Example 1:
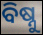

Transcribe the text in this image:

ବିଷ୍ନୁ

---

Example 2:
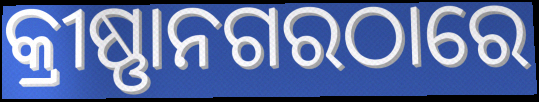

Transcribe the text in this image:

କ୍ରୀଷ୍ଣାନଗରଠାରେ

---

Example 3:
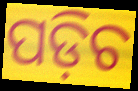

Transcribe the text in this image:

ପଡ଼ିଚ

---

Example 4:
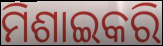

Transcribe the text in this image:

ମିଶାଇକରି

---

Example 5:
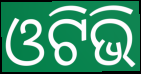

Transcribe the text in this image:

ଓଟିଭି